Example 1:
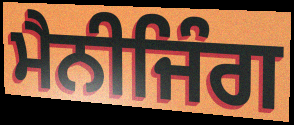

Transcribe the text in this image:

ਮੈਨੀਜਿੰਗ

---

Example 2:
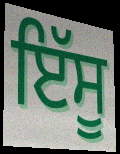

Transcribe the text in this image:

ਇੱਸੂ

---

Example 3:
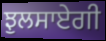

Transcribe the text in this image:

ਝੁਲਸਾਏਗੀ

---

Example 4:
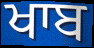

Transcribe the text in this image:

ਖਾਬ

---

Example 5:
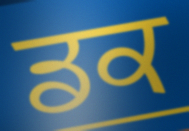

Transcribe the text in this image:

ਡਕ